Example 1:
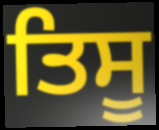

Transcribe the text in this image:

ਤਿਸੂ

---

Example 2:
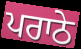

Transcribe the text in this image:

ਪਰਾਠੇ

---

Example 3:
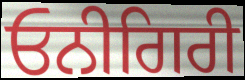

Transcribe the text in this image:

ਓਨੀਗਿਰੀ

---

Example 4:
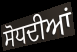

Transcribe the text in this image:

ਸੋਧਦੀਆਂ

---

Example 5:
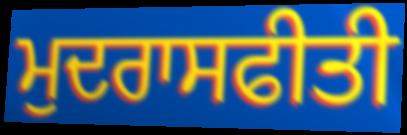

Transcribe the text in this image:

ਮੁਦਰਾਸਫੀਤੀ